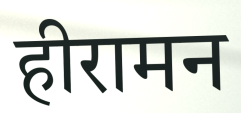
हीरामन